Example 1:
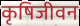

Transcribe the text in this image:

कृषिजीवन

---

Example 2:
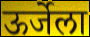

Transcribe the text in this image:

ऊर्जेला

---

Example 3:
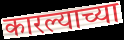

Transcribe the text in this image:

कारल्याच्या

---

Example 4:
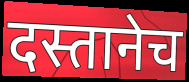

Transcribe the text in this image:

दस्तानेच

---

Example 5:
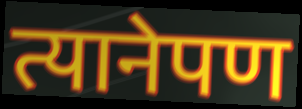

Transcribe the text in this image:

त्यानेपण